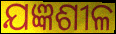
ଯଜ୍ଞଶୀଳ